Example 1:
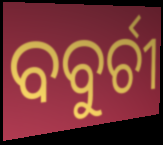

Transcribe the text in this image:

ବବୁର୍ଚୀ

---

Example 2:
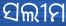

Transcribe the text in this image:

ସଲୀମ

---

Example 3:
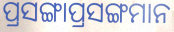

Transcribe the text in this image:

ପ୍ରସଙ୍ଗାପ୍ରସଙ୍ଗମାନ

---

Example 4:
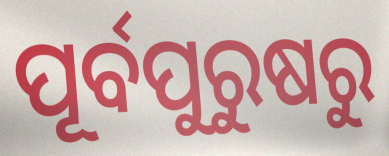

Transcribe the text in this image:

ପୂର୍ବପୁରୁଷରୁ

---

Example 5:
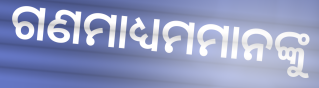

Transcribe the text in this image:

ଗଣମାଧ୍ୟମମାନଙ୍କୁ